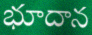
భూదాన